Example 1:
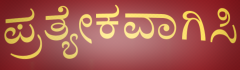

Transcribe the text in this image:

ಪ್ರತ್ಯೇಕವಾಗಿಸಿ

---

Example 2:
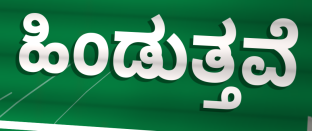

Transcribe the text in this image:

ಹಿಂಡುತ್ತವೆ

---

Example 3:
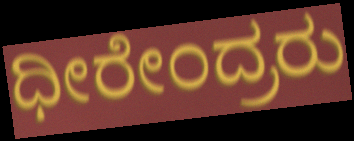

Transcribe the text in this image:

ಧೀರೇಂದ್ರರು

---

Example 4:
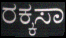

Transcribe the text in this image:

ರಕ್ಕಸಾ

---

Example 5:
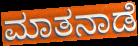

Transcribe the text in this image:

ಮಾತನಾಡೆ